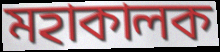
মহাকালক